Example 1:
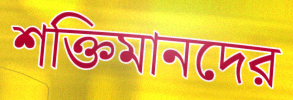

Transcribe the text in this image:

শক্তিমানদের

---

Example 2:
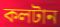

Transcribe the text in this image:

কলটান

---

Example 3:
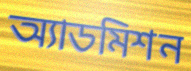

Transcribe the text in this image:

অ্যাডমিশন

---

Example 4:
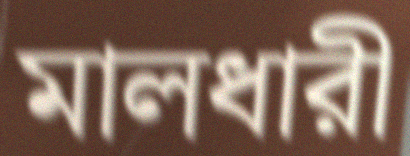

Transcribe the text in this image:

মালধারী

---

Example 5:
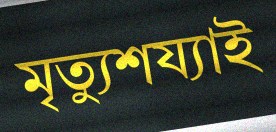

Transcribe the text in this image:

মৃত্যুশয্যাই